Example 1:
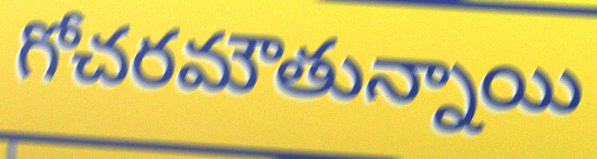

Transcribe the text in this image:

గోచరమౌతున్నాయి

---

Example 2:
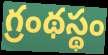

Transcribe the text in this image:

గ్రంథస్థం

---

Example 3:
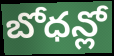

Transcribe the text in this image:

బోధన్లో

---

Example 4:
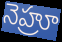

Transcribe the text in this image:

నెహ్రూ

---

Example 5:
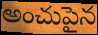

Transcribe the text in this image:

అంచుపైన